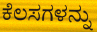
ಕೆಲಸಗಳನ್ನು